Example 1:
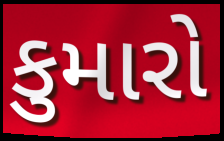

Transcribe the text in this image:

કુમારો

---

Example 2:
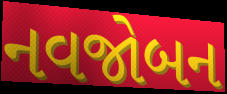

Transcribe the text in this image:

નવજોબન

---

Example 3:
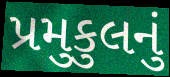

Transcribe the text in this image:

પ્રમુકુલનું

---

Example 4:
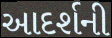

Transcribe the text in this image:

આદર્શની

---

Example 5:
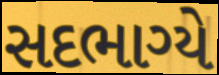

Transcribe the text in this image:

સદભાગ્યે